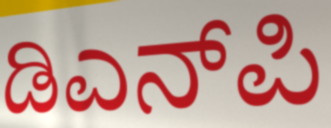
ಡಿಎನ್‌ಪಿ